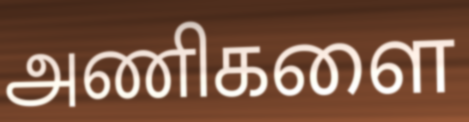
அணிகளை